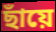
ছাঁয়ে